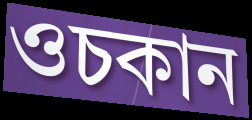
ওচকান